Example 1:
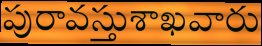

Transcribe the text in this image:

పురావస్తుశాఖవారు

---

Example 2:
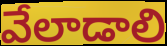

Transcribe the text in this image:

వేలాడాలి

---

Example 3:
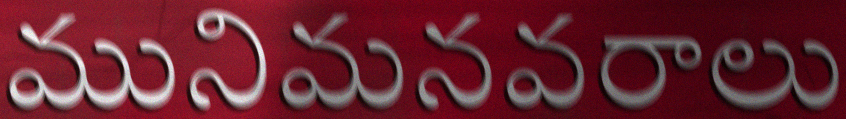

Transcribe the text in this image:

మునిమనవరాలు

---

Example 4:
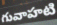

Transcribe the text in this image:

గువాహటి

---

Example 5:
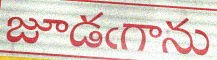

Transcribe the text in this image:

జూడఁగాను